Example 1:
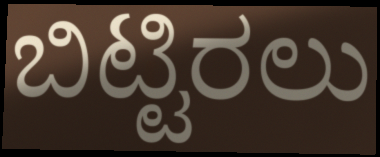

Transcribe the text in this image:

ಬಿಟ್ಟಿರಲು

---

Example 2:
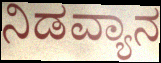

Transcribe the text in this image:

ನಿಡವ್ಯಾನ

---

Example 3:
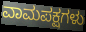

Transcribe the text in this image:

ವಾಮಪಕ್ಷಗಳು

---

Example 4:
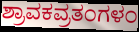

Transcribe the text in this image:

ಶ್ರಾವಕವ್ರತಂಗಳಂ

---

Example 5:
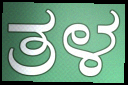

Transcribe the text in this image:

ತಳ